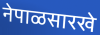
नेपाळसारखे